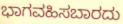
ಭಾಗವಹಿಸಬಾರದು